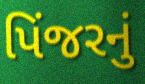
પિંજરનું